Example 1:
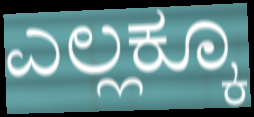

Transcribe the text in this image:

ಎಲ್ಲಕ್ಕೂ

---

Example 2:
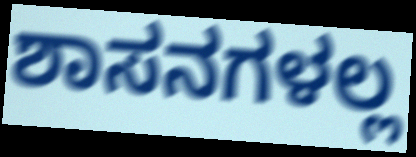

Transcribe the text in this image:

ಶಾಸನಗಳಲ್ಲ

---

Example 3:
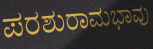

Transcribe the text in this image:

ಪರಶುರಾಮಭಾವು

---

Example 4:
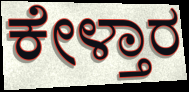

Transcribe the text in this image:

ಕೇಳ್ತಾರ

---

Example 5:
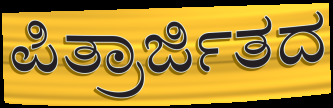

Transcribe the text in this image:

ಪಿತ್ರಾರ್ಜಿತದ